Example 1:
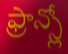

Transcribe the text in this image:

ఫ్రాన్స్లో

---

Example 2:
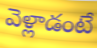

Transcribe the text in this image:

వెళ్లాడంటే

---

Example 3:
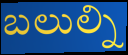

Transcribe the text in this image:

బలుల్ని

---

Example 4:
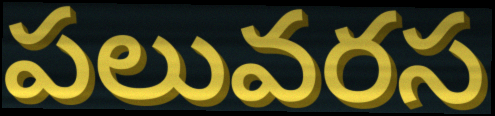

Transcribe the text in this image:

పలువరస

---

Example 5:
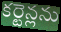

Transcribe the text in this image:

కర్టెన్లను